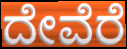
ದೇವೆರೆ